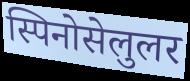
स्पिनोसेलुलर